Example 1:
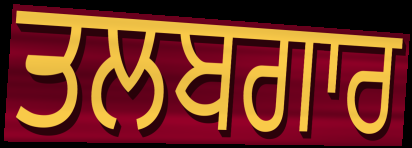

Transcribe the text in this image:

ਤਲਬਗਾਰ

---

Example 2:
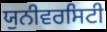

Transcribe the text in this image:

ਯੁਨੀਵਰਸਿਟੀ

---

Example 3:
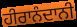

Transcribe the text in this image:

ਹੀਰਾਨੰਦਾਨੀ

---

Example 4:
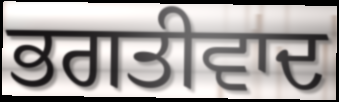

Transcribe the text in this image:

ਭਗਤੀਵਾਦ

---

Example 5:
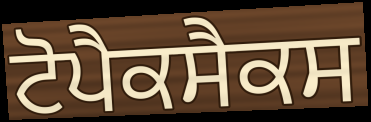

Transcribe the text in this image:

ਟੋਪੈਕਸੈਕਸ